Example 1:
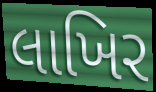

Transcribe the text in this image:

લાખિર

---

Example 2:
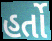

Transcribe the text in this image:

હર્તો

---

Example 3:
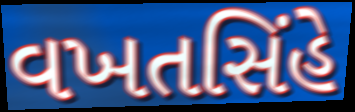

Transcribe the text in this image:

વખતસિંહે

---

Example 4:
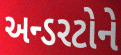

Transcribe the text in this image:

અન્ડરટોને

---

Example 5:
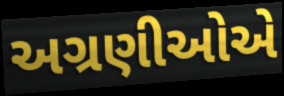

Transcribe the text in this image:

અગ્રણીઓએ